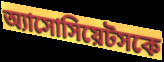
অ্যাসোসিয়েটসকে